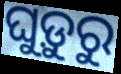
ଘୁଡ଼ୁରୁ